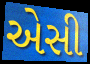
એસી